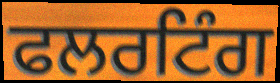
ਫਲਰਟਿੰਗ